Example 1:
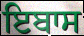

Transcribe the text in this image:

ਇਬਾਸ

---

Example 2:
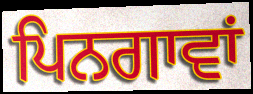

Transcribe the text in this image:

ਪਿਨਗਾਵਾਂ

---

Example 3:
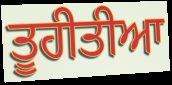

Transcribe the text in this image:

ਤੂਹੀਤੀਆ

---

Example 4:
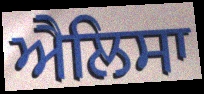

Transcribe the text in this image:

ਐਲਿਸਾ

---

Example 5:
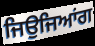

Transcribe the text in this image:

ਜਿਉਜਿਆਂਗ